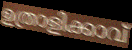
ഉത്രാളിക്കാവ്